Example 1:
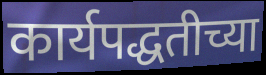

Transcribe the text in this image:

कार्यपद्धतीच्या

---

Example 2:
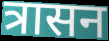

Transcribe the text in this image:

त्रासन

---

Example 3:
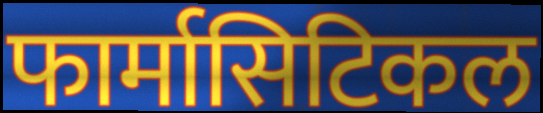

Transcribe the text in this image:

फार्मासिटिकल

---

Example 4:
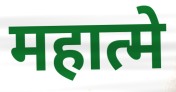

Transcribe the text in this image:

महात्मे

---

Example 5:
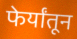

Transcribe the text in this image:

फेर्यांतून